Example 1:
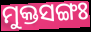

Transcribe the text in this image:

ମୁକ୍ତସଙ୍ଗଃ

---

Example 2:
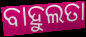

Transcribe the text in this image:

ବାହୁଲତା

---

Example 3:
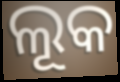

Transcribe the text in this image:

ଲୂକ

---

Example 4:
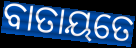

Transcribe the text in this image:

ବାତାୟତେ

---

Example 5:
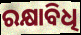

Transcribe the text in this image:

ରକ୍ଷାବିଧି